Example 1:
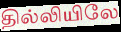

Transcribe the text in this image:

தில்லியிலே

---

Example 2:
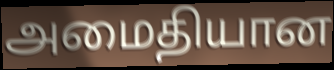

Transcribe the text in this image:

அமைதியான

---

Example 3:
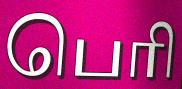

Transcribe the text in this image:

பெரி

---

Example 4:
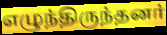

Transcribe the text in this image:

எழுந்திருந்தனர்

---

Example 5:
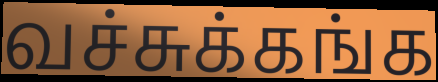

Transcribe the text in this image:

வச்சுக்கங்க